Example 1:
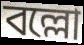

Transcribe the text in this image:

বল্লো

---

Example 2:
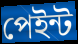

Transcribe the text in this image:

পেইন্ট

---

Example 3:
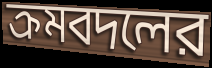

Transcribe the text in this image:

ক্রমবদলের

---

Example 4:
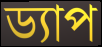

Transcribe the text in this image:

ড্যাপ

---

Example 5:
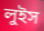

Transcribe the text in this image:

লুইস